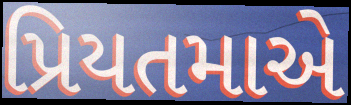
પ્રિયતમાએ